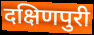
दक्षिणपुरी